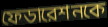
ফেডারেশনকে